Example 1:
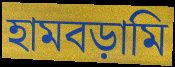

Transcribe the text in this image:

হামবড়ামি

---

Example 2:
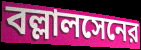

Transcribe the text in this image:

বল্লালসেনের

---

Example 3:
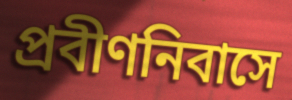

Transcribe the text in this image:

প্রবীণনিবাসে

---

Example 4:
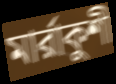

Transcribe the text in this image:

মার্রাকুশী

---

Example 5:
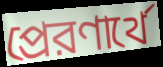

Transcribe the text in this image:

প্রেরণার্থে